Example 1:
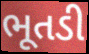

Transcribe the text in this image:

ભૂતડી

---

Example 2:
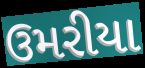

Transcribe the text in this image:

ઉમરીયા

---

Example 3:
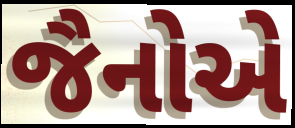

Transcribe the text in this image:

જૈનોએ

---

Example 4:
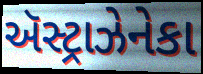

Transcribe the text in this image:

ઍસ્ટ્રાઝેનેકા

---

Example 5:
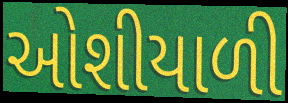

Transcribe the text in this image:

ઓશીયાળી